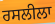
ਰਸਲੀਲਾ